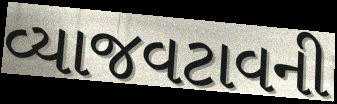
વ્યાજવટાવની